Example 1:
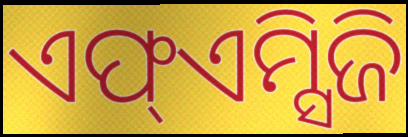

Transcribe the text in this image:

ଏଫ୍ଏମ୍ସିଜି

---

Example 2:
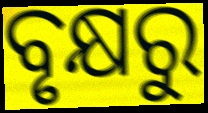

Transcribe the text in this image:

ବୃକ୍ଷରୁ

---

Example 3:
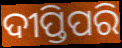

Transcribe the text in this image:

ଦୀପ୍ତିପରି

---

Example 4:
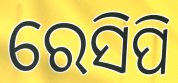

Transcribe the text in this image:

ରେସିପି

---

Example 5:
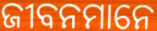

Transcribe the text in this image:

ଜୀବନମାନେ